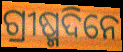
ଗ୍ରୀଷ୍ମଦିନେ